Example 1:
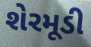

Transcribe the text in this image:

શેરમૂડી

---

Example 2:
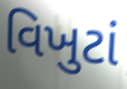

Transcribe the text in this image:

વિખુટાં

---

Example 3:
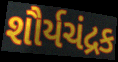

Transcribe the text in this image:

શૌર્યચંદ્રક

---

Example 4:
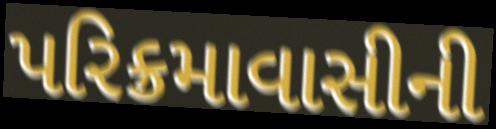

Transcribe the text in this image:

પરિક્રમાવાસીની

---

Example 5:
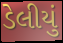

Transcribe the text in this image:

ડેલીયું